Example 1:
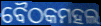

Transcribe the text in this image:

ବୈଠକମହଲ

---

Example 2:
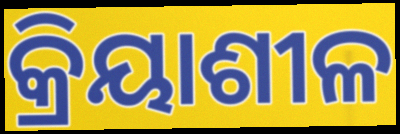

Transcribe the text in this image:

କ୍ରିୟାଶୀଳ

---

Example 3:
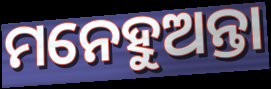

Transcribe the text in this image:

ମନେହୁଅନ୍ତା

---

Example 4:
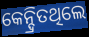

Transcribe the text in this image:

କେନ୍ଦ୍ରିତଥିଲେ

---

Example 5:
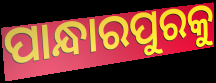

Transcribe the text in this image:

ପାନ୍ଧାରପୁରକୁ